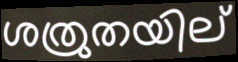
ശത്രുതയില്